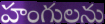
హంగులను